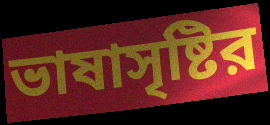
ভাষাসৃষ্টির